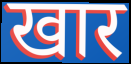
खार